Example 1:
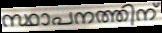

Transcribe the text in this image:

സ്ഥാപനത്തിന്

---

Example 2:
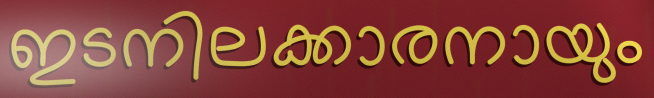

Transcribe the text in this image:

ഇടനിലക്കാരനായും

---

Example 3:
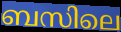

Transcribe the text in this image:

ബസിലെ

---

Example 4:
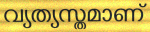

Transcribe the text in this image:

വ്യത്യസ്തമാണ്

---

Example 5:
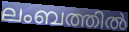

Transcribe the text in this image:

ലംബത്തിൽ